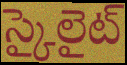
స్కైలైట్